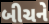
બીચને